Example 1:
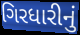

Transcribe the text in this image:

ગિરધારીનું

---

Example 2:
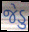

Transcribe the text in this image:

જેડુ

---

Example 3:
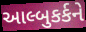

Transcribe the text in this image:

આલ્બુકર્કને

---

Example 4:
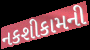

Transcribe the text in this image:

નકશીકામની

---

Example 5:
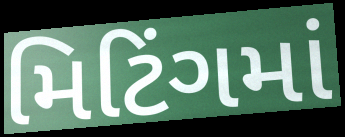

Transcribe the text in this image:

મિટિંગમાં